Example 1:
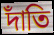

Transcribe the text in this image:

দাঁতি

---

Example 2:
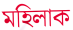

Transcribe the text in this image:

মহিলাক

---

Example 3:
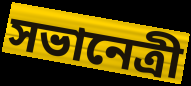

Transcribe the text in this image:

সভানেত্ৰী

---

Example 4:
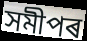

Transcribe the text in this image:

সমীপৰ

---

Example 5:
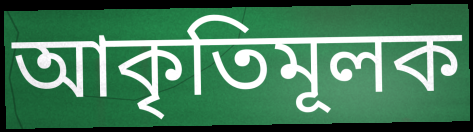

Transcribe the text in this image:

আকৃতিমূলক